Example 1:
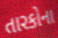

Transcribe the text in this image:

તારકોના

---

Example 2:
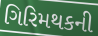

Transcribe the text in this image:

ગિરિમથકની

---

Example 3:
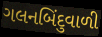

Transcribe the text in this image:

ગલનબિંદુવાળી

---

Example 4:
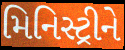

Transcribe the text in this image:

મિનિસ્ટ્રીને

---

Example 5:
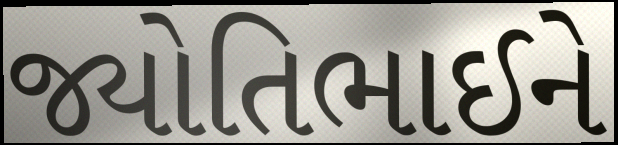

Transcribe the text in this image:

જ્યોતિભાઈને